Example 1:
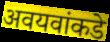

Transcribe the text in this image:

अवयवांकडे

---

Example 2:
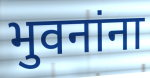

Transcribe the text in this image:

भुवनांना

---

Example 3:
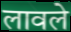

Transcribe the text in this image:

लावले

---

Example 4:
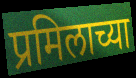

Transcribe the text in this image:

प्रमिलाच्या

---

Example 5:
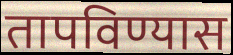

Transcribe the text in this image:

तापविण्यास